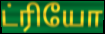
ட்ரியோ